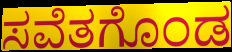
ಸವೆತಗೊಂಡ